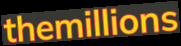
themillions